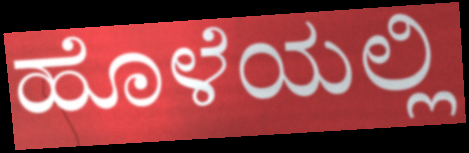
ಹೊಳೆಯಲ್ಲಿ